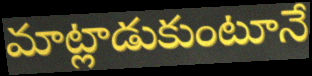
మాట్లాడుకుంటూనే